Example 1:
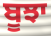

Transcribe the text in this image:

ਬੂਝਾ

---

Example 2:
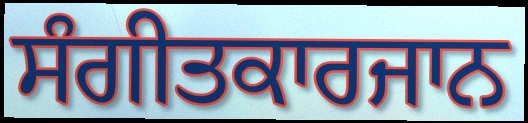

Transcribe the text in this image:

ਸੰਗੀਤਕਾਰਜਾਨ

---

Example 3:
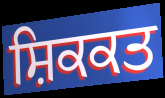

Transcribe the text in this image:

ਸ਼ਿਕਕਤ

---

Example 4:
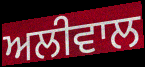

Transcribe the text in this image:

ਅਲੀਵਾਲ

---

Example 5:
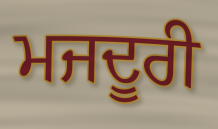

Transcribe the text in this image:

ਮਜਦੂਰੀ